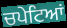
ਚਪੇਟਿਆਂ